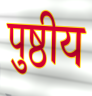
पुष्ठीय